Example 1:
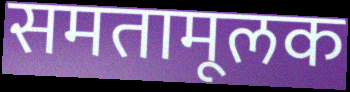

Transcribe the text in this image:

समतामूलक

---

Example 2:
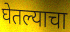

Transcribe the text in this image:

घेतल्याचा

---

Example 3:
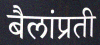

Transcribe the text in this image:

बैलांप्रती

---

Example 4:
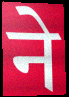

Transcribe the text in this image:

ने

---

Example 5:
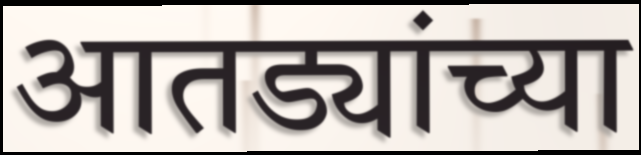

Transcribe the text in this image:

आतड्यांच्या